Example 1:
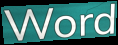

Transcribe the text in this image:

Word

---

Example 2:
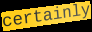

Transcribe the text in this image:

certainly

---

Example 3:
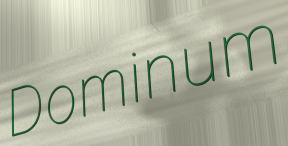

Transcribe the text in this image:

Dominum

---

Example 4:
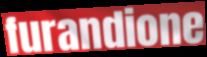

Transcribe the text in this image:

furandione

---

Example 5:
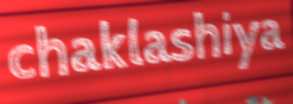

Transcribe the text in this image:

chaklashiya